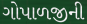
ગોપાળજીની